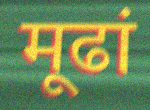
मूढां